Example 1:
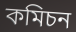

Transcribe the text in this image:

কমিচন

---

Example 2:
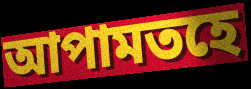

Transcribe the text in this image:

আপামতহে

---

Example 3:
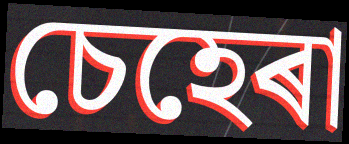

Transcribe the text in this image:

চেহেৰা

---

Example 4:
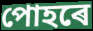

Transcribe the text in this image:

পোহৰে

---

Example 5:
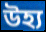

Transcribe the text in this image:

উহ্য